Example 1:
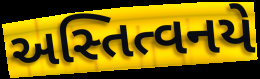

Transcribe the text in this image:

અસ્તિત્વનયે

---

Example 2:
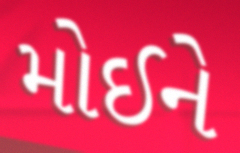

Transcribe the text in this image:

મોઈને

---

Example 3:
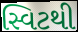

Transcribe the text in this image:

સ્વિટથી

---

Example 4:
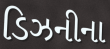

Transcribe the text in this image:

ડિઝનીના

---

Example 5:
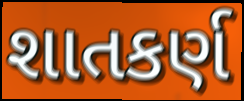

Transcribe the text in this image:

શાતકર્ણ